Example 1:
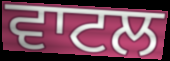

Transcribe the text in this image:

ਵਾਟਲ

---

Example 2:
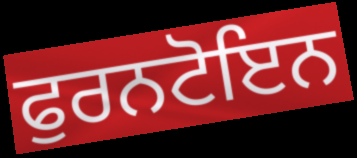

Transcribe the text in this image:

ਫੁਰਨਟੋਇਨ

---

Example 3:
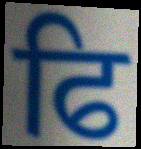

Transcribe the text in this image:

ਫਿ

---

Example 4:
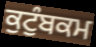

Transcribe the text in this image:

ਕੁਟੁੰਬਕਮ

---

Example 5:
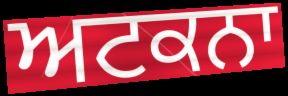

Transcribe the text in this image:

ਅਟਕਨਾ